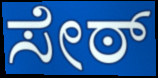
ಸೇಠ್